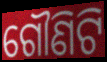
ଗୌଣିଟି